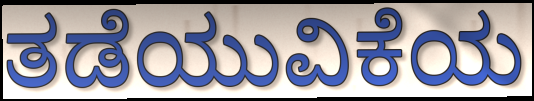
ತಡೆಯುವಿಕೆಯ